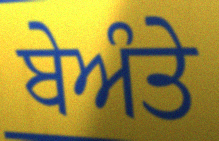
ਬੇਅੰਤੇ